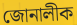
জোনালীক